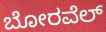
ಬೋರವೆಲ್